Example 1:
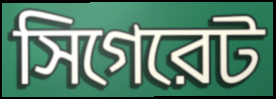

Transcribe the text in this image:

সিগেরেট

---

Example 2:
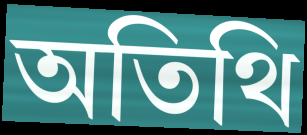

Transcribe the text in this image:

অতিথি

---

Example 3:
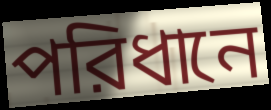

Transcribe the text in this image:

পরিধানে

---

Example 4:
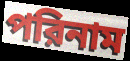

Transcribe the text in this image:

পরিনাম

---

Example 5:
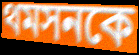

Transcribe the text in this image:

থমসনকে